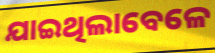
ଯାଇଥିଲାବେଳେ